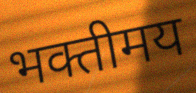
भक्तीमय